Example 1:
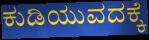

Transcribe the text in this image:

ಕುಡಿಯುವದಕ್ಕೆ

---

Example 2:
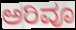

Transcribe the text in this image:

ಅರಿವೂ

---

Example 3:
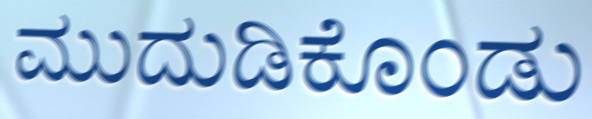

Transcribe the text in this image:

ಮುದುಡಿಕೊಂಡು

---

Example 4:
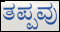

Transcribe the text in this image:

ತಪ್ಪವು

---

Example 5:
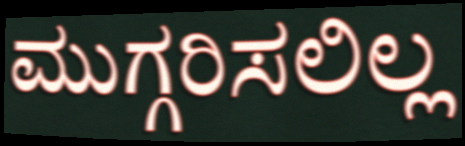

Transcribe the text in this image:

ಮುಗ್ಗರಿಸಲಿಲ್ಲ